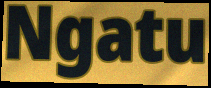
Ngatu